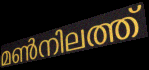
മൺനിലത്ത്